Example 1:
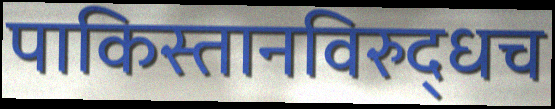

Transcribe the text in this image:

पाकिस्तानविरुद्धच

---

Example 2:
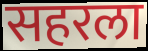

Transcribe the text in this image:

सहरला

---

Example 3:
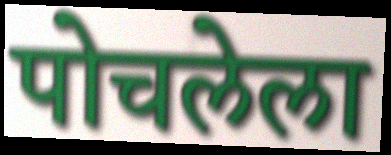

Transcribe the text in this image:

पोचलेला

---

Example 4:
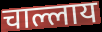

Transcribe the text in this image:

चाल्लाय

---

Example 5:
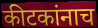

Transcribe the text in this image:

कीटकांनाच